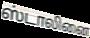
ஸ்டாலினை